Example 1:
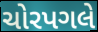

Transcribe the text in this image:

ચોરપગલે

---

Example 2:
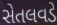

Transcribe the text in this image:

સેતલવડે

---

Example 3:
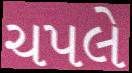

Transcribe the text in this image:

ચપલે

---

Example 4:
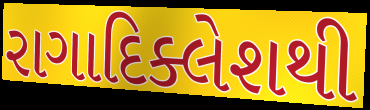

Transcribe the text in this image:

રાગાદિક્લેશથી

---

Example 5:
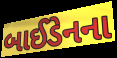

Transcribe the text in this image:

બાઈડેનના